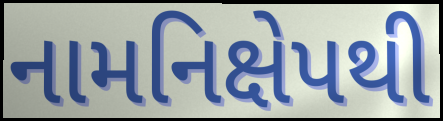
નામનિક્ષેપથી